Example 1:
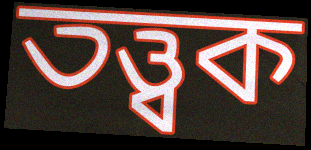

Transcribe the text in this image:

তত্ত্বক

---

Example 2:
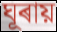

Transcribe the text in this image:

ঘূৰায়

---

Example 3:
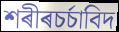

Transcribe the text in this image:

শৰীৰচৰ্চাবিদ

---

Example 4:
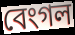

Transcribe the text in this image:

বেংগল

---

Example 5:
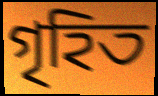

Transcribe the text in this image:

গৃহিত